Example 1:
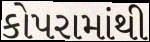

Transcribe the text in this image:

કોપરામાંથી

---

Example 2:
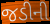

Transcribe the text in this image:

જડીની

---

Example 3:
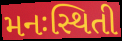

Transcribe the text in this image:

મનઃસ્થિતી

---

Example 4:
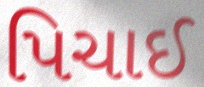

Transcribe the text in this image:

પિચાઈ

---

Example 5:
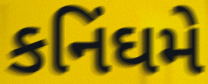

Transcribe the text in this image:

કનિંઘમે